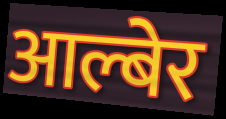
आल्बेर